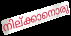
നില്ക്കാനൊരു